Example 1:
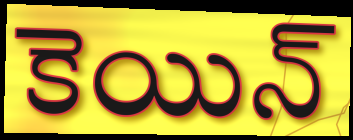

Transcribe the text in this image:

కెయిన్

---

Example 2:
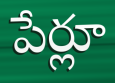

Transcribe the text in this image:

పేర్లూ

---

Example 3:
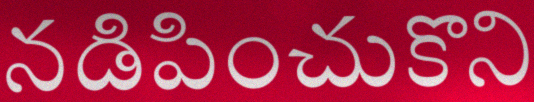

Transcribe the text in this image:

నడిపించుకొని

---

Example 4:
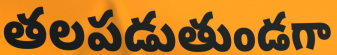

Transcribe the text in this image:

తలపడుతుండగా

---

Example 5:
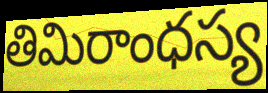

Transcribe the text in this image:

తిమిరాంధస్య